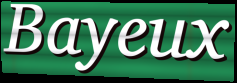
Bayeux